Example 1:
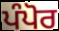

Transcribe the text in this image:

ਪੰਪੋਰ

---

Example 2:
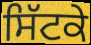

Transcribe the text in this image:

ਸਿੱਟਕੇ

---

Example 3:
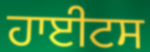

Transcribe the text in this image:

ਹਾਈਟਸ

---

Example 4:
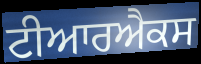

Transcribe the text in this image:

ਟੀਆਰਐਕਸ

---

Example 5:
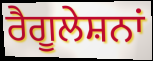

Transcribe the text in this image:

ਰੈਗੂਲੇਸ਼ਨਾਂ